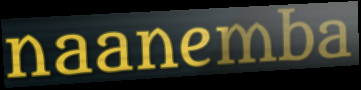
naanemba